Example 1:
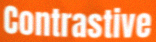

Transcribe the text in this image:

Contrastive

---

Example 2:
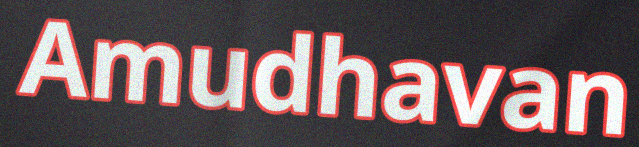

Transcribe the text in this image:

Amudhavan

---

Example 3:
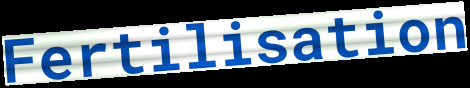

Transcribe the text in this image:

Fertilisation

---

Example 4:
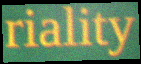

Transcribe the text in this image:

riality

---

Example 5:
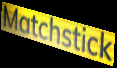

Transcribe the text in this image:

Matchstick